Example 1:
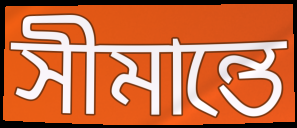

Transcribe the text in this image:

সীমান্তে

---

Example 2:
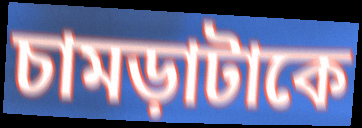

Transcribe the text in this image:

চামড়াটাকে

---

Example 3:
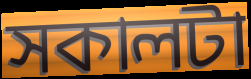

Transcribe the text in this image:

সকালটা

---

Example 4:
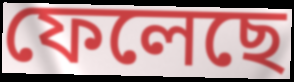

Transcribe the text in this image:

ফেলেছে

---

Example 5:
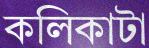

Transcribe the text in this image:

কলিকাটা